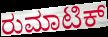
ರುಮಾಟಿಕ್